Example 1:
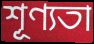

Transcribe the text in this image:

শূণ্যতা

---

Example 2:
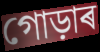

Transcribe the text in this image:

গোড়াৰ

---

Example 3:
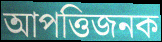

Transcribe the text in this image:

আপত্তিজনক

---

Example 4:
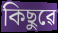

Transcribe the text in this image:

কিছুৱে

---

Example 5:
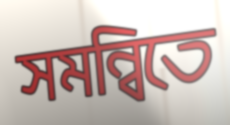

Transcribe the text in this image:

সমন্বিতে